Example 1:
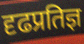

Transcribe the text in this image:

दृढप्रतिज्ञ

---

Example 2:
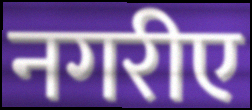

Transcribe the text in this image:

नगरीए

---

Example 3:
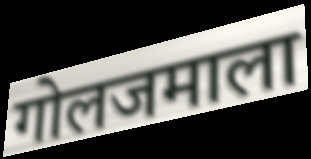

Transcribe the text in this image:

गोलजमाला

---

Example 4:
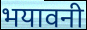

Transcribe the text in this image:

भयावनी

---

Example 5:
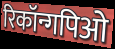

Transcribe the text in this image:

रिकॉन्गपिओ